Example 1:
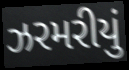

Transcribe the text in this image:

ઝરમરીયું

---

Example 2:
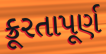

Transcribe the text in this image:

ક્રૂરતાપૂર્ણ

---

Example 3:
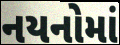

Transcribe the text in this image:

નયનોમાં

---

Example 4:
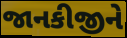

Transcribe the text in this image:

જાનકીજીને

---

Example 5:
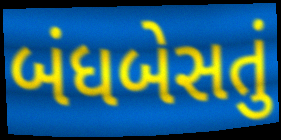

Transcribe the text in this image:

બંધબેસતું